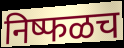
निष्फळच